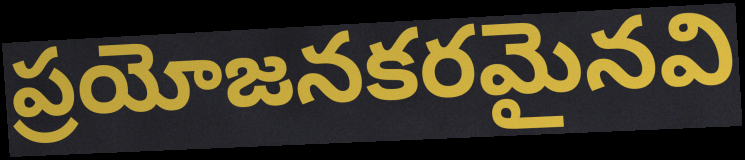
ప్రయోజనకరమైనవి